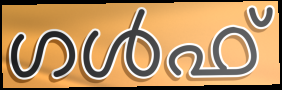
ഗൾഫ്